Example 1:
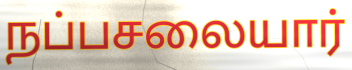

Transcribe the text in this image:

நப்பசலையார்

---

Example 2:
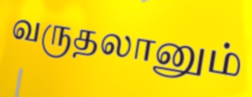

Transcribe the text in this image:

வருதலானும்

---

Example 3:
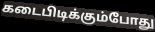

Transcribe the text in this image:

கடைபிடிக்கும்போது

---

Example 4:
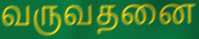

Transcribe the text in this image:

வருவதனை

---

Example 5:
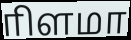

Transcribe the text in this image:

ரிளமா